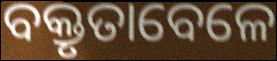
ବକ୍ତୃତାବେଳେ